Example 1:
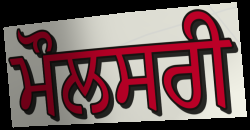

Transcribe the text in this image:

ਮੌਲਸਰੀ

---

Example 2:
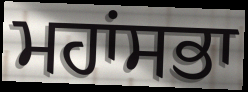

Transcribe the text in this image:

ਮਹਾਂਸਭਾ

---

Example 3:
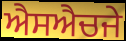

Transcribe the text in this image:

ਐਸਐਚਜੇ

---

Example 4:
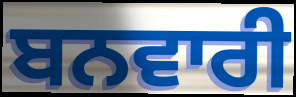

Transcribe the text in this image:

ਬਨਵਾਰੀ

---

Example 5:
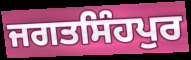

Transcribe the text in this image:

ਜਗਤਸਿੰਹਪੁਰ